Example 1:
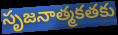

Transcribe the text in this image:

సృజనాత్మకతకు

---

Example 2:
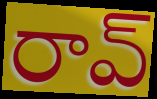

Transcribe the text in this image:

రావ్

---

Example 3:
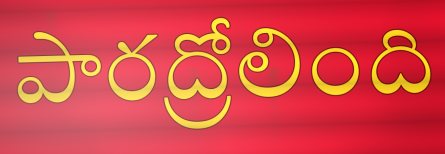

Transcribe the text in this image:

పారద్రోలింది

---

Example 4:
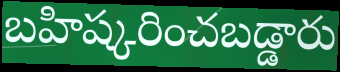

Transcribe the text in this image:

బహిష్కరించబడ్డారు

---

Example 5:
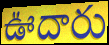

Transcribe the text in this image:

ఊదారు